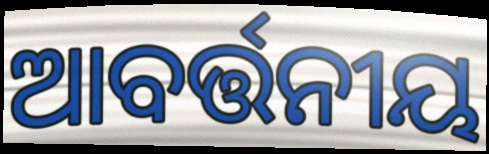
ଆବର୍ତ୍ତନୀୟ